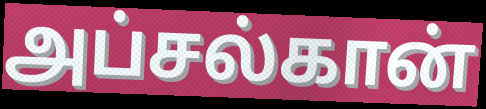
அப்சல்கான்